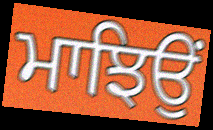
ਮਾਝਿਉਂ